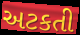
અટકતી